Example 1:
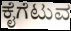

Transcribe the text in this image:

ಕೈಗೆಟುವ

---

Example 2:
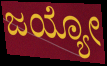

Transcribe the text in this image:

ಜಯ್ಯೋ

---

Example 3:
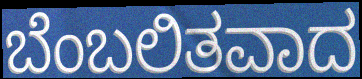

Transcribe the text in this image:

ಬೆಂಬಲಿತವಾದ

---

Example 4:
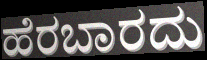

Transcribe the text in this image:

ಹೆರಬಾರದು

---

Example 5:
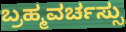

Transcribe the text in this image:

ಬ್ರಹ್ಮವರ್ಚಸ್ಸು